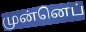
முன்னெப்